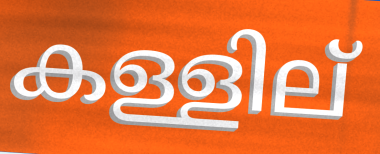
കള്ളില്